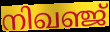
നിഖഞ്ജ്